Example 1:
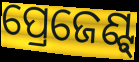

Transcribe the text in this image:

ପ୍ରେଜେଣ୍ଟ୍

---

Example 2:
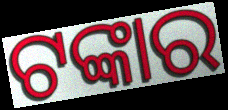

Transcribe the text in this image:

ଟଙ୍କାର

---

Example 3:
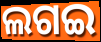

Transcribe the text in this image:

ଲଗଇ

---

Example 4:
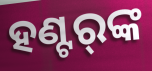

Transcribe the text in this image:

ହଣ୍ଟର୍‌ଙ୍କ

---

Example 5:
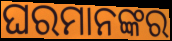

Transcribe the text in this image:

ଘରମାନଙ୍କର